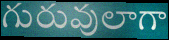
గురువులాగా